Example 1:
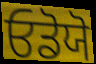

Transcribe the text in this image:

ਓਡੋਯੋ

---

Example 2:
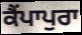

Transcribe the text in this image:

ਕੈਂਪਾਪੁਰਾ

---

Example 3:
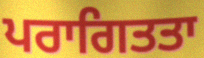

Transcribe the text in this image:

ਪਰਾਗਿਤਤਾ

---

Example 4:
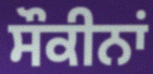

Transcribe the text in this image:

ਸੌਕੀਨਾਂ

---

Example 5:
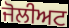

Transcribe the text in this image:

ਜੋਲੀਅਟ